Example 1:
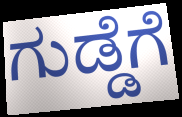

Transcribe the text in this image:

ಗುಡ್ಡೆಗೆ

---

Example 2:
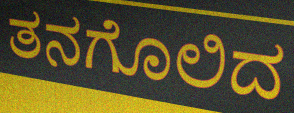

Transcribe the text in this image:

ತನಗೊಲಿದ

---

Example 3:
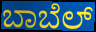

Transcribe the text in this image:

ಬಾಬೆಲ್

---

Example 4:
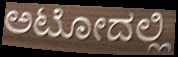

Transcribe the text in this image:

ಅಟೋದಲ್ಲಿ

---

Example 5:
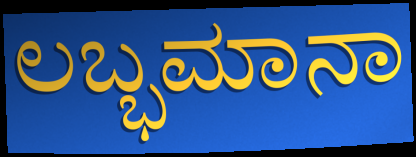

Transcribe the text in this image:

ಲಬ್ಭಮಾನಾ